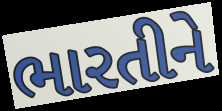
ભારતીને